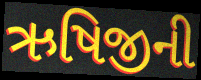
ઋષિજીની